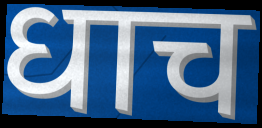
धाच